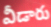
వీడారు